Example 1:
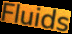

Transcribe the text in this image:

Fluids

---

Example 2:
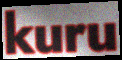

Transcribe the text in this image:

kuru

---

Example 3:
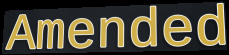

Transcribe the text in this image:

Amended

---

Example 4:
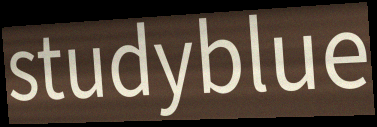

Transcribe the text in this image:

studyblue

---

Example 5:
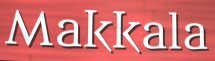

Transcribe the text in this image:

Makkala